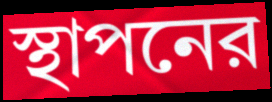
স্থাপনের